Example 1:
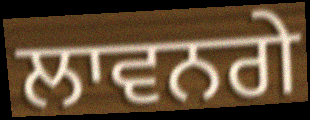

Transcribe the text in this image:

ਲਾਵਨਗੇ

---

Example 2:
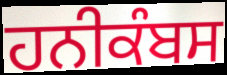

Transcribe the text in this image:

ਹਨੀਕੰਬਸ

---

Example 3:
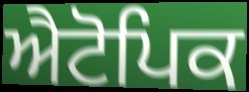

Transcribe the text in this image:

ਐਟੋਪਿਕ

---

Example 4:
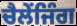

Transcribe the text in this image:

ਚੈਲੇਂਜਿੰਗ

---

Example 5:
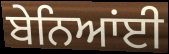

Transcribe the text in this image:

ਬੇਨਿਆਂਈ